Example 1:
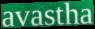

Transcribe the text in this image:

avastha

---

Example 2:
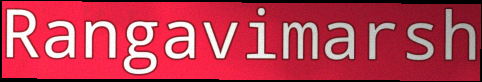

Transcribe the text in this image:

Rangavimarsh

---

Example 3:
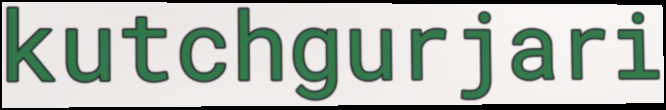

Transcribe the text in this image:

kutchgurjari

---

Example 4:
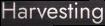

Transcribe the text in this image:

Harvesting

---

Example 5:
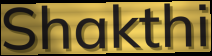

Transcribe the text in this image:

Shakthi